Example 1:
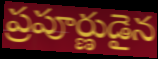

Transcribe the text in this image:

ప్రపూర్ణుడైన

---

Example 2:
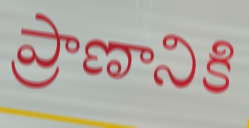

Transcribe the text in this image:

ప్రాణానికి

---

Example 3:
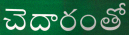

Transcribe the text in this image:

చెదారంతో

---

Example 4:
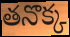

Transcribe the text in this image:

తనొక్క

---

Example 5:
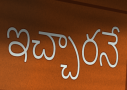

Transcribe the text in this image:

ఇచ్చారనే